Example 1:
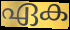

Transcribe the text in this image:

ഏക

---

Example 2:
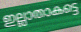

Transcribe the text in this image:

ഇല്ലാതാകട്ടെ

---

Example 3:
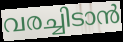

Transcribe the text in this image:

വരച്ചിടാൻ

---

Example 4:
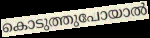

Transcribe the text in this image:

കൊടുത്തുപോയാൽ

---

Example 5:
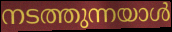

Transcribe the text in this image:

നടത്തുന്നയാൾ